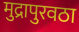
मुद्रापुरवठा